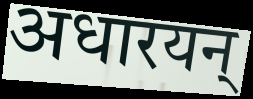
अधारयन्